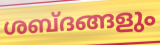
ശബ്ദങ്ങളും